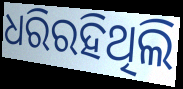
ଧରିରହିଥିଲି